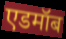
एडमॉब